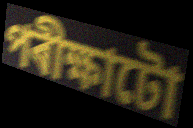
পৰীক্ষাটো